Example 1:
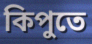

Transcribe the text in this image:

কিপুতে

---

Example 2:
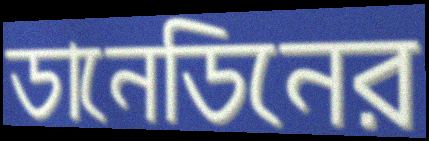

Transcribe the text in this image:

ডানেডিনের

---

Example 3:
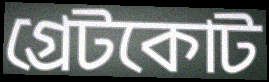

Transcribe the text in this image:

গ্রেটকোট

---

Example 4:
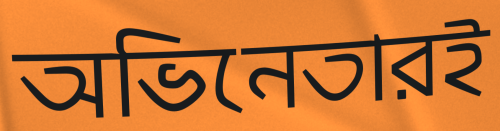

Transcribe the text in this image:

অভিনেতারই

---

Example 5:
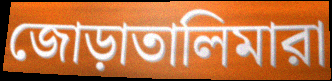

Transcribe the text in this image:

জোড়াতালিমারা